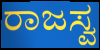
ರಾಜಸ್ವ